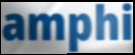
amphi